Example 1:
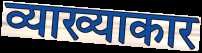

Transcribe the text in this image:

व्याख्याकार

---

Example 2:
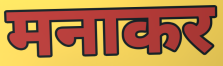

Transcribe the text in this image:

मनाकर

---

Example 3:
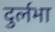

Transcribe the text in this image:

दुर्लभा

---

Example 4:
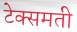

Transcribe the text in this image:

टेक्समती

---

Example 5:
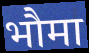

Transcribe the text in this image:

भौमा